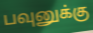
பவுனுக்கு